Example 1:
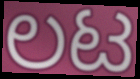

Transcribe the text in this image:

ಲಟ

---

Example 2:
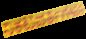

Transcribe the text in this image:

ನಿಕಟವರ್ತಿಗಳೂ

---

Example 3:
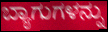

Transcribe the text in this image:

ಬ್ಯಾಗುಗಳನ್ನು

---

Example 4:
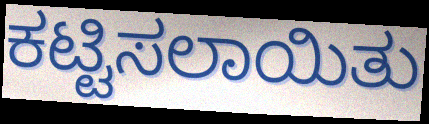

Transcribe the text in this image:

ಕಟ್ಟಿಸಲಾಯಿತು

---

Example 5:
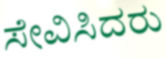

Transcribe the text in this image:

ಸೇವಿಸಿದರು